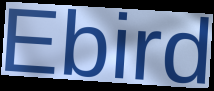
Ebird